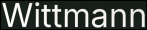
Wittmann